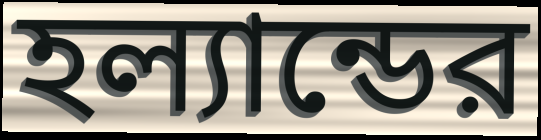
হল্যান্ডের